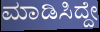
ಮಾಡಿಸಿದ್ದೇ